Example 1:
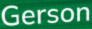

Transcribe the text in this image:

Gerson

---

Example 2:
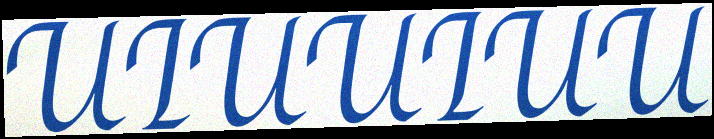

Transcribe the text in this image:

UIUUIUU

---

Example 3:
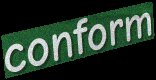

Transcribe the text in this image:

conform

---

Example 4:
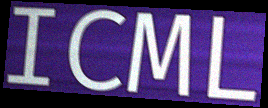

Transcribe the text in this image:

ICML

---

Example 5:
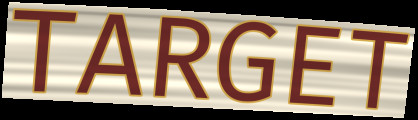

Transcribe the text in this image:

TARGET